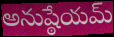
అనుష్ఠేయమ్